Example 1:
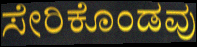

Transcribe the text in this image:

ಸೇರಿಕೊಂಡವು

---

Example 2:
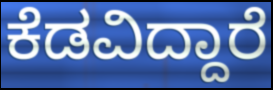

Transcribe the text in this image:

ಕೆಡವಿದ್ದಾರೆ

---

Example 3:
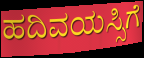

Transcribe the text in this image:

ಹದಿವಯಸ್ಸಿಗೆ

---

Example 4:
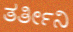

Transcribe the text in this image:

ತರ್ತೀನಿ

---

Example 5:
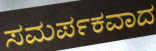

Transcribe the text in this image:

ಸಮರ್ಪಕವಾದ